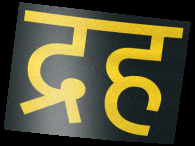
द्रह